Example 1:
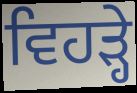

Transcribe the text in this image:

ਵਿਹੜ੍ਹੇ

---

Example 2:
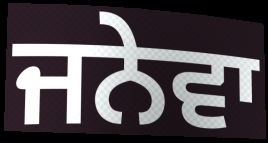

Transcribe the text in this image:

ਜਨੇਵਾ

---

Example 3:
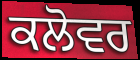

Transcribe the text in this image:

ਕਲੋਵਰ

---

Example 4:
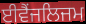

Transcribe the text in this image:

ਈਵੈਂਜਲਿਜਮ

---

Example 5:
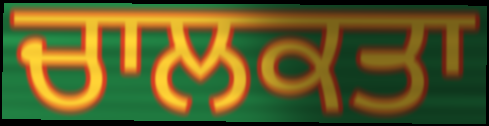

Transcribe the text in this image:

ਚਾਲਕਤਾ